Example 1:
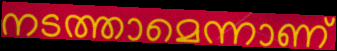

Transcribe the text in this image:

നടത്താമെന്നാണ്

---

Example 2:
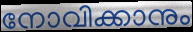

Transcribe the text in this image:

നോവിക്കാനും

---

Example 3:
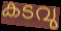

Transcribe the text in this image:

കടവു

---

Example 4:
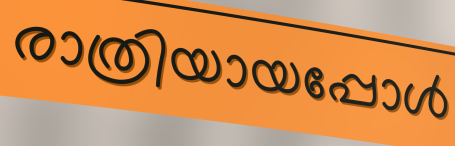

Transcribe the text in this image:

രാത്രിയായപ്പോൾ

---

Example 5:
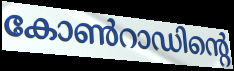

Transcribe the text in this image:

കോൺറാഡിന്റെ